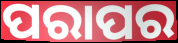
ପରାପର